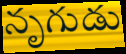
నృగుడు